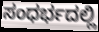
ಸಂಧರ್ಭದಲ್ಲಿ